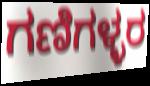
ಗಣಿಗಳ್ಳರ